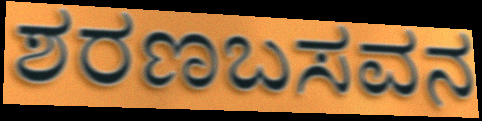
ಶರಣಬಸವನ